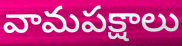
వామపక్షాలు